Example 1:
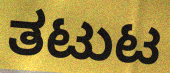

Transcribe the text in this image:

ತಟುಟ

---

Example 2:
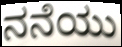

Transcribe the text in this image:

ನನೆಯು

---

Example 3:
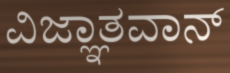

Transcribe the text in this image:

ವಿಜ್ಞಾತವಾನ್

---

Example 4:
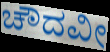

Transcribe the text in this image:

ಚೌದವೀ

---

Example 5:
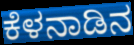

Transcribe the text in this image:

ಕೆಳನಾಡಿನ